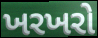
ખરખરો